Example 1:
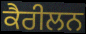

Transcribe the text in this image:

ਕੈਰੀਲਨ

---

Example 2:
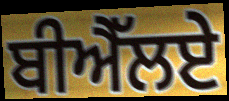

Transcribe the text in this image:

ਬੀਐੱਲਏ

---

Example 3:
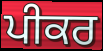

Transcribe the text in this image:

ਪੀਕਰ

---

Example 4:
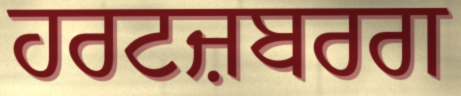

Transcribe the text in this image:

ਹਰਟਜ਼ਬਰਗ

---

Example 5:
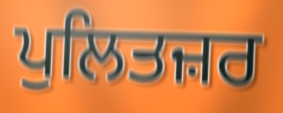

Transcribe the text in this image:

ਪੁਲਿਤਜ਼ਰ